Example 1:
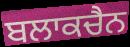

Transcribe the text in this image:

ਬਲਾਕਚੈਨ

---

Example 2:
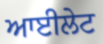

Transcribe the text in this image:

ਆਈਲੇਟ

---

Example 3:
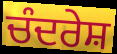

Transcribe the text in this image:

ਚੰਦਰੇਸ਼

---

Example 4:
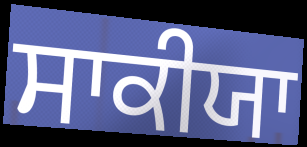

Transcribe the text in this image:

ਸਾਕੀਯਾ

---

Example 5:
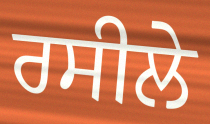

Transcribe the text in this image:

ਰਸੀਲੇ